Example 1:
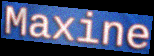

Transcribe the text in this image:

Maxine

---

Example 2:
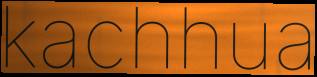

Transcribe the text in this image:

kachhua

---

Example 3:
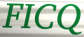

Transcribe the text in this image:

FICQ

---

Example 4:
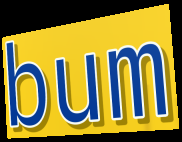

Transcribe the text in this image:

bum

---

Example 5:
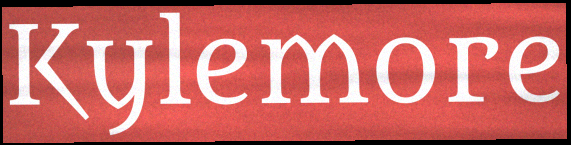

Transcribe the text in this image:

Kylemore